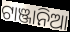
ଟାଞ୍ଜାନିଆ